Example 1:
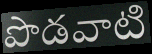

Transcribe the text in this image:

పొడవాటి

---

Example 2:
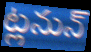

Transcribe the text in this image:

ట్లనున్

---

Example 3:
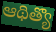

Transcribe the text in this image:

ఆథిత్యొ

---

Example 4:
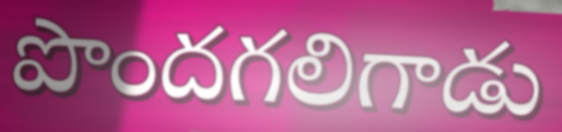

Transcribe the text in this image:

పొందగలిగాడు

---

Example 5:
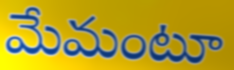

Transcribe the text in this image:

మేమంటూ